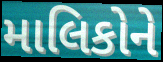
માલિકોને